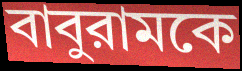
বাবুরামকে